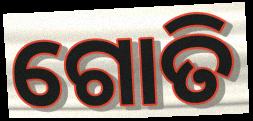
ଗୋତି